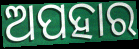
ଅପହାର